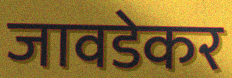
जावडेकर